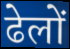
ढेलों